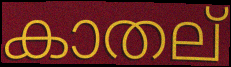
കാതല്